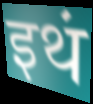
इथं